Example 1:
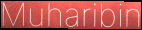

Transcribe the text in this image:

Muharibin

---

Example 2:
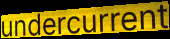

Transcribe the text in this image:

undercurrent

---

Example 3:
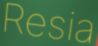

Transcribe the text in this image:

Resia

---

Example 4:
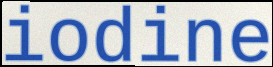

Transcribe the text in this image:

iodine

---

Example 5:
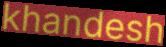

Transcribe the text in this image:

khandesh